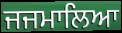
ਜਜਮਾਲਿਆ